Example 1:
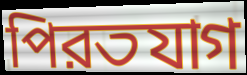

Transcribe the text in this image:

পিরতযাগ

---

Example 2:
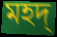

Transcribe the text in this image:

মহদ্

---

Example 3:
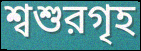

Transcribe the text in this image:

শ্বশুরগৃহ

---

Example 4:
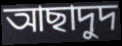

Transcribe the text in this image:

আছাদুদ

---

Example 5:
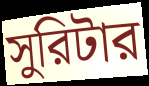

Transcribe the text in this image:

সুরিটার